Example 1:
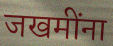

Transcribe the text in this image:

जखमींना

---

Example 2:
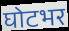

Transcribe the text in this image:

घोटभर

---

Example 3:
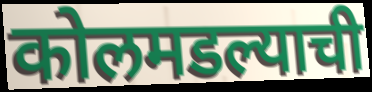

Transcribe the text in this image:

कोलमडल्याची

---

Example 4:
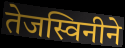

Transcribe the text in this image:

तेजस्विनीने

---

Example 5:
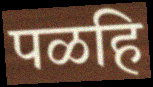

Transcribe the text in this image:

पळहि